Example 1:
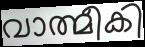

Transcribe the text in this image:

വാത്മീകി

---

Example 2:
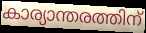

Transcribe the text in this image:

കാര്യാന്തരത്തിന്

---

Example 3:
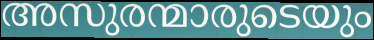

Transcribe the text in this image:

അസുരന്മാരുടെയും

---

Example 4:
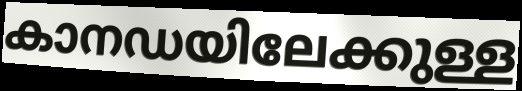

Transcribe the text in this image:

കാനഡയിലേക്കുള്ള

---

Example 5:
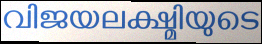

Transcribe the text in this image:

വിജയലക്ഷ്മിയുടെ